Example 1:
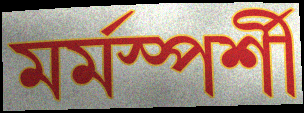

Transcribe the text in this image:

মর্মস্পর্শী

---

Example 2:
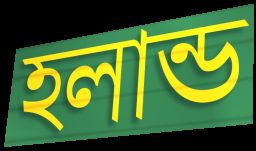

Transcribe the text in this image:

হলান্ড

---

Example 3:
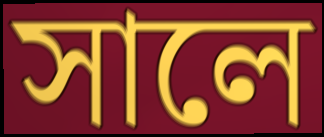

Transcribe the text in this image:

সালে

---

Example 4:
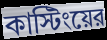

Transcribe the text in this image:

কাস্টিংয়ের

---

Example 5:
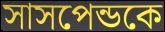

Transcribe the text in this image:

সাসপেন্ডকে